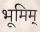
भूमिम्